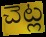
చెట్ల